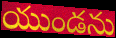
యుండను